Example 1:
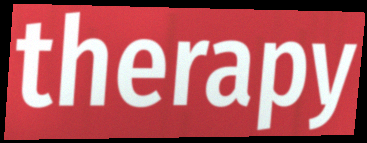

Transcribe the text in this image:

therapy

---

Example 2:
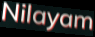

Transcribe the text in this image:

Nilayam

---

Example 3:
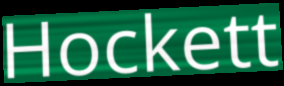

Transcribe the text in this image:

Hockett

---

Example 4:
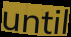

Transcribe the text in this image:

until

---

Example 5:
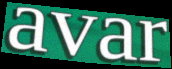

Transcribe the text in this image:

avar